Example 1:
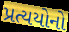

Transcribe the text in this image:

પ્રત્યયોનો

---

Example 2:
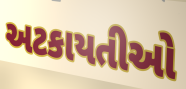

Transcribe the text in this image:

અટકાયતીઓ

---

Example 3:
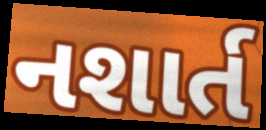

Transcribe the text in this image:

નશાર્ત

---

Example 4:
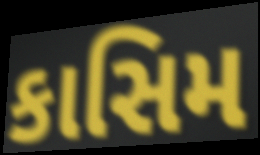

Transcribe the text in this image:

કાસિમ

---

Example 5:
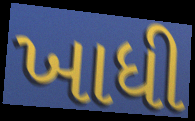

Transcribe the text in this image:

ખાધી